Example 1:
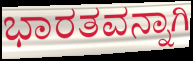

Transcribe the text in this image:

ಭಾರತವನ್ನಾಗಿ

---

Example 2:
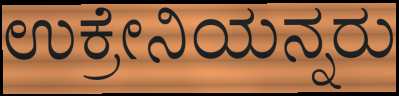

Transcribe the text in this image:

ಉಕ್ರೇನಿಯನ್ನರು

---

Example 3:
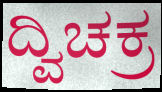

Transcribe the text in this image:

ದ್ವಿಚಕ್ರ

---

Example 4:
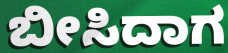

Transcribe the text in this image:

ಬೀಸಿದಾಗ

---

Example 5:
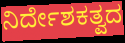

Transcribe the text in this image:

ನಿರ್ದೇಶಕತ್ವದ